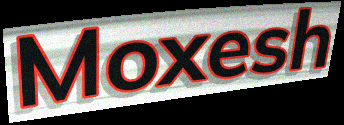
Moxesh